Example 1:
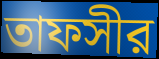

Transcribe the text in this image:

তাফসীর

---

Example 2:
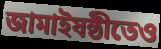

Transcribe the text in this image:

জামাইষষ্ঠীতেও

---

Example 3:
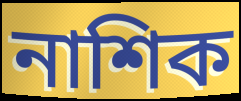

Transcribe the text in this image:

নাশিক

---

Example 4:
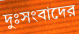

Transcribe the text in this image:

দুঃসংবাদের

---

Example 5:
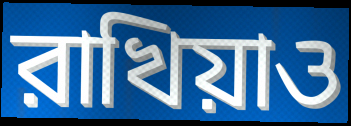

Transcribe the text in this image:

রাখিয়াও